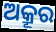
ଅକ୍ରୂର